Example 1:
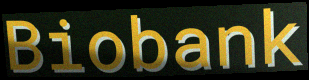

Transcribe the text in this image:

Biobank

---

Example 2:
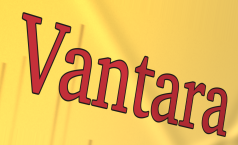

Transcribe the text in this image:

Vantara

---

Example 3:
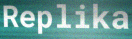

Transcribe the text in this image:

Replika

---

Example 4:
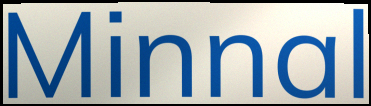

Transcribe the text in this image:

Minnal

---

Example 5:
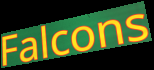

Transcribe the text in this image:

Falcons